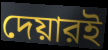
দেয়ারই